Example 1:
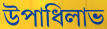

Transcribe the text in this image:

উপাধিলাভ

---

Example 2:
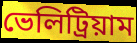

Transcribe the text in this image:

ভেলিট্রিয়াম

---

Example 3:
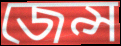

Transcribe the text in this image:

জেন্স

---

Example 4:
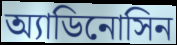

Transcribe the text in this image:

অ্যাডিনোসিন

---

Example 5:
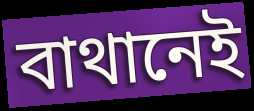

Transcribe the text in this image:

বাথানেই